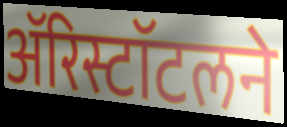
ॲरिस्टॉटलने